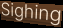
Sighing